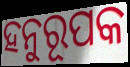
ହନୁରୂପକ